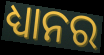
ଧ୍ୟାନର